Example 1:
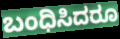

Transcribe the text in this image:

ಬಂಧಿಸಿದರೂ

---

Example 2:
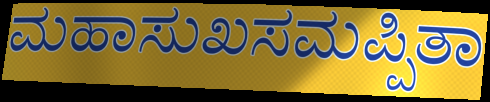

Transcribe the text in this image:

ಮಹಾಸುಖಸಮಪ್ಪಿತಾ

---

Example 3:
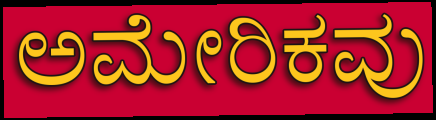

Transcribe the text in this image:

ಅಮೇರಿಕವು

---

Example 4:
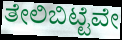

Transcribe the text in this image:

ತೇಲಿಬಿಟ್ಟೆವೇ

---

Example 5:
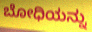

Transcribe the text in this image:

ಬೋಧಿಯನ್ನು